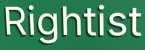
Rightist